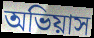
অভিয়াস